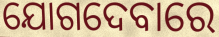
ଯୋଗଦେବାରେ